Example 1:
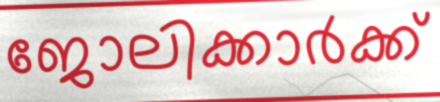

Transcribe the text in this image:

ജോലിക്കാർക്ക്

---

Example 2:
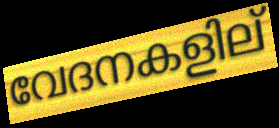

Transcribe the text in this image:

വേദനകളില്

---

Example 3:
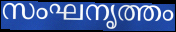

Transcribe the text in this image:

സംഘനൃത്തം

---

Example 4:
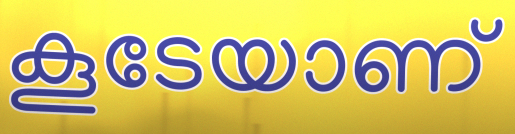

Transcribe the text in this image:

കൂടേയാണ്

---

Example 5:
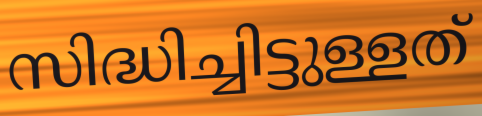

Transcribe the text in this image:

സിദ്ധിച്ചിട്ടുള്ളത്